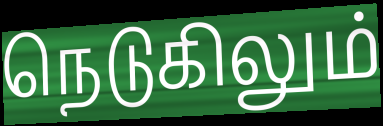
நெடுகிலும்